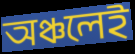
অঞ্চলেই